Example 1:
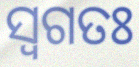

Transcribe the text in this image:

ସ୍ଵଗତଃ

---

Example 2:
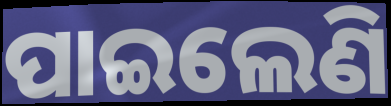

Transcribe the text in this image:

ପାଇଲେଣି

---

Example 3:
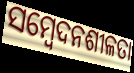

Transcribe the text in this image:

ସମ୍ଵେଦନଶୀଳତା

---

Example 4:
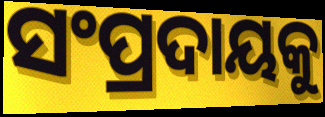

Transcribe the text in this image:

ସଂପ୍ରଦାୟକୁ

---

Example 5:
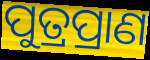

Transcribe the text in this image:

ପୁତ୍ରପ୍ରାଣ